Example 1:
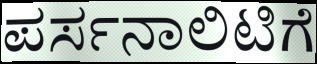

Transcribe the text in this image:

ಪರ್ಸನಾಲಿಟಿಗೆ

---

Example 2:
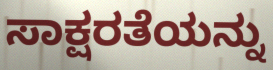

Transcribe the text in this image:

ಸಾಕ್ಷರತೆಯನ್ನು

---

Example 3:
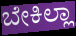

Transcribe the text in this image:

ಬೇಕಿಲ್ಲಾ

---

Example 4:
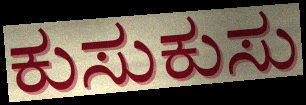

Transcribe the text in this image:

ಕುಸುಕುಸು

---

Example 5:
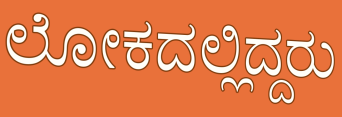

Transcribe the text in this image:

ಲೋಕದಲ್ಲಿದ್ದರು